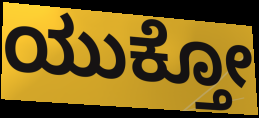
ಯುಕ್ತೋ